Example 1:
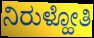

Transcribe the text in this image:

ನಿರುಳ್ಹೋತಿ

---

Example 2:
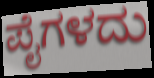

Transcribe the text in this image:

ಪೈಗಳದು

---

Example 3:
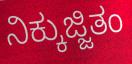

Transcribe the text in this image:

ನಿಕ್ಕುಜ್ಜಿತಂ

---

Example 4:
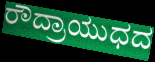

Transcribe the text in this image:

ರೌದ್ರಾಯುಧದ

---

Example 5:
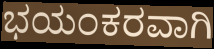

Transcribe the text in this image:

ಭಯಂಕರವಾಗಿ